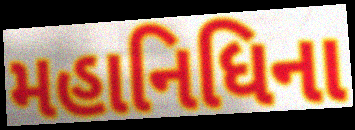
મહાનિધિના